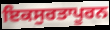
ਇਕਸੁਰਤਾਪੂਰਨ